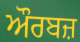
ਔਰਬਜ਼